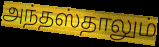
அந்தஸ்தாலும்